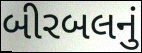
બીરબલનું